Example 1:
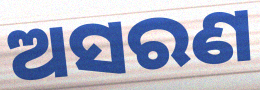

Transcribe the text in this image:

ଅସରଣ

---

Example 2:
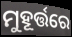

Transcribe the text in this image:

ମୁହୂର୍ତ୍ତରେ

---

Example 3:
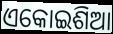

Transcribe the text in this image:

ଏକୋଇଶିଆ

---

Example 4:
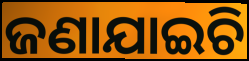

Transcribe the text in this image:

ଜଣାଯାଇଚି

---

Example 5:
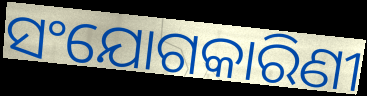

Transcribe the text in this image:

ସଂଯୋଗକାରିଣୀ